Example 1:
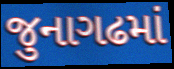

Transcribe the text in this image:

જુનાગઢમાં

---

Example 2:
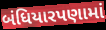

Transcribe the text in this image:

બંધિયારપણામાં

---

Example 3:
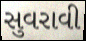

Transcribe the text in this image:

સુવરાવી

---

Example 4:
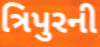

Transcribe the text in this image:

ત્રિપુરની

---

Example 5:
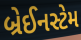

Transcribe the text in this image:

બ્રેઈનસ્ટેમ